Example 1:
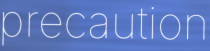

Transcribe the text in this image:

precaution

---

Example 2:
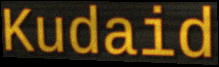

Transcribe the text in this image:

Kudaid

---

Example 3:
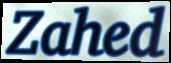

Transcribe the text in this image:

Zahed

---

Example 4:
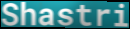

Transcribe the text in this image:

Shastri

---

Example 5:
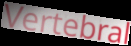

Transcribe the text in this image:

Vertebral